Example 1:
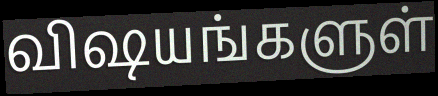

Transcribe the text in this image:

விஷயங்களுள்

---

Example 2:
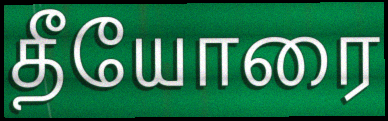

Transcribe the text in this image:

தீயோரை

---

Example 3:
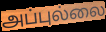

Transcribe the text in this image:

அப்புல்லை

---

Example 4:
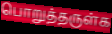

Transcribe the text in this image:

பொறுத்தருள்க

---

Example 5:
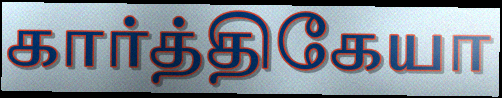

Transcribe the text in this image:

கார்த்திகேயா